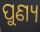
ପୁଣ୍ୟ